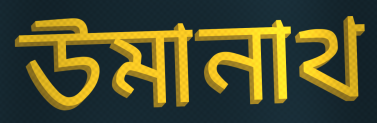
উমানাথ